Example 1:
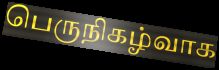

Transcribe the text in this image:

பெருநிகழ்வாக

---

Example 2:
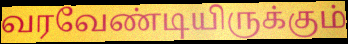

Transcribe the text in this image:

வரவேண்டியிருக்கும்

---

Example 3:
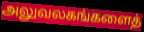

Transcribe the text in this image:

அலுவலகங்களைத்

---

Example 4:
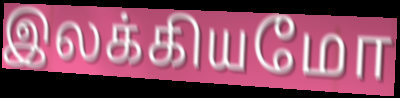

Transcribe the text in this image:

இலக்கியமோ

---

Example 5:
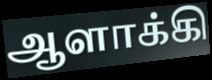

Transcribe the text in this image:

ஆளாக்கி